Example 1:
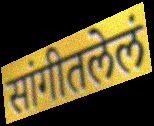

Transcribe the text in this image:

सांगीतलेलं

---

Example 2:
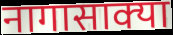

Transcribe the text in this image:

नागासाक्या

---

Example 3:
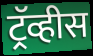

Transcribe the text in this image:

ट्रॅव्हीस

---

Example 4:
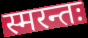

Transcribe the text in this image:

स्मरन्तः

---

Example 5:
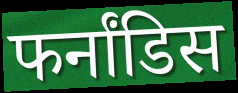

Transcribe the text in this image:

फर्नांडिस